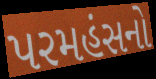
પરમહંસનો